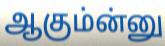
ஆகும்ன்னு